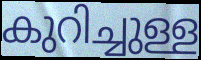
കുറിച്ചുള്ള